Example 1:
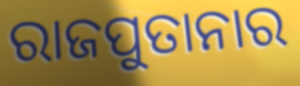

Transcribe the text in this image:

ରାଜପୁତାନାର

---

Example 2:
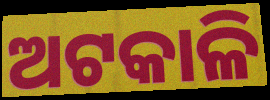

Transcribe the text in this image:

ଅଟକାଳି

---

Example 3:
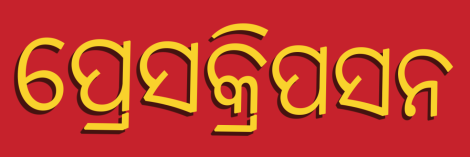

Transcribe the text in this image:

ପ୍ରେସକ୍ରିପସନ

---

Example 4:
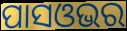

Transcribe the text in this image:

ପାସଓଭର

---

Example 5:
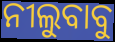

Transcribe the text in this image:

ନୀଲୁବାବୁ